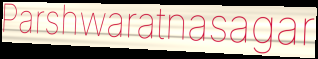
Parshwaratnasagar